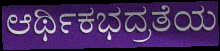
ಆರ್ಥಿಕಭದ್ರತೆಯ